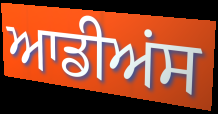
ਆਡੀਅਂਸ